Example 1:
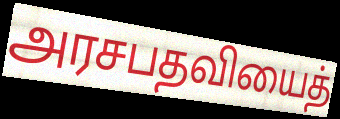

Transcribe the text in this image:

அரசபதவியைத்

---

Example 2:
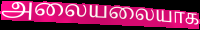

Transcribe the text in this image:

அலையலையாக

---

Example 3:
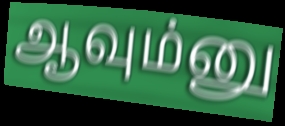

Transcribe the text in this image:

ஆவும்னு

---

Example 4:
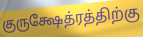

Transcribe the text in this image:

குருக்ஷேத்ரத்திற்கு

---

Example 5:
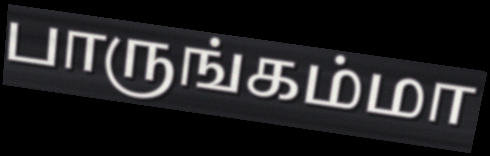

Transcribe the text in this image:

பாருங்கம்மா